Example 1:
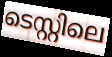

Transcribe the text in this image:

ടെസ്റ്റിലെ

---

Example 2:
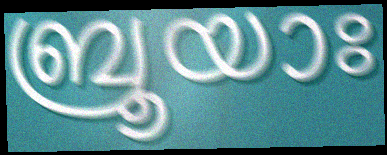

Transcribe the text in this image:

ബ്രൂയാഃ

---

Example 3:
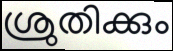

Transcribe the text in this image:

ശ്രുതിക്കും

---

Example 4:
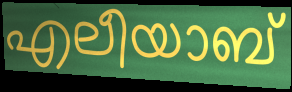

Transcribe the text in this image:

എലീയാബ്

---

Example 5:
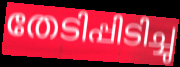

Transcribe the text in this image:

തേടിപ്പിടിച്ചു